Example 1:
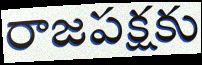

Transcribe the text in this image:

రాజపక్షకు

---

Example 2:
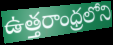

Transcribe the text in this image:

ఉత్తరాంధ్రలోని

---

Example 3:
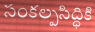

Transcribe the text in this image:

సంకల్పసిద్ధికి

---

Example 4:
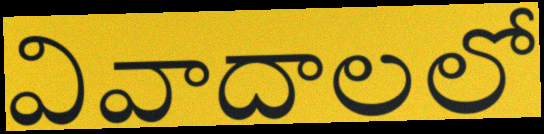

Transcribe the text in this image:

వివాదాలలో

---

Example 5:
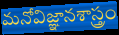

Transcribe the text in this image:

మనోవిజ్ఞానశాస్త్రం